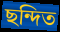
ছন্দিত